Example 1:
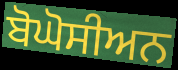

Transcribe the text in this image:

ਬੋਘੋਸੀਅਨ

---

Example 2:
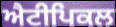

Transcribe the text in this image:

ਐਟੀਪਿਕਲ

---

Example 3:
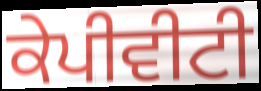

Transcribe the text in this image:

ਕੇਪੀਵੀਟੀ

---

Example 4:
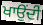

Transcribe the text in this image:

ਖਾਉਂਦੀ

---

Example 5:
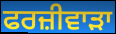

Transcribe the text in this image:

ਫਰਜ਼ੀਵਾਡ਼ਾ